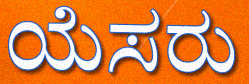
ಯೆಸರು